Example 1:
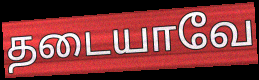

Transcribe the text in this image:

தடையாவே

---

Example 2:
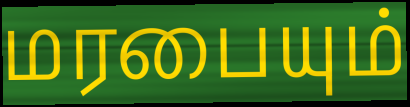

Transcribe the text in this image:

மரபையும்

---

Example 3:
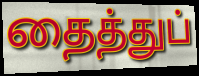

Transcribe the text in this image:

தைத்துப்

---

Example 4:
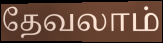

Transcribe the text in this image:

தேவலாம்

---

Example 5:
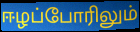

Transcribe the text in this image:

ஈழப்போரிலும்